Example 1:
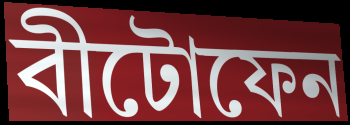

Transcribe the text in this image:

বীটোফেন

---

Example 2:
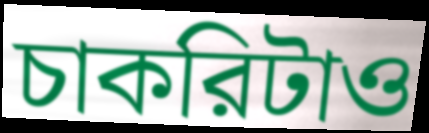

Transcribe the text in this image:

চাকরিটাও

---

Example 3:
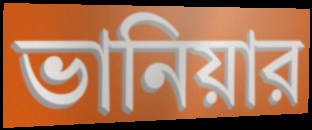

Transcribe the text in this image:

ভানিয়ার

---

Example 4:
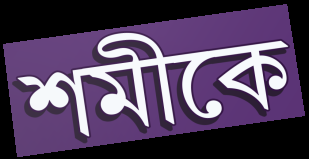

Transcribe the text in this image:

শমীকে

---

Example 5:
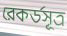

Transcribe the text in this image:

রেকর্ডসূত্র